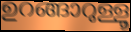
ഉറങ്ങാറുള്ളൂ